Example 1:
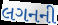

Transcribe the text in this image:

લગનની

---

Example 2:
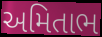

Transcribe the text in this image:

અમિતાભ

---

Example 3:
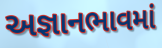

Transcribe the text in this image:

અજ્ઞાનભાવમાં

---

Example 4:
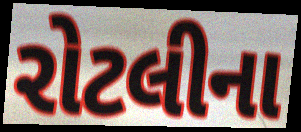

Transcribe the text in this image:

રોટલીના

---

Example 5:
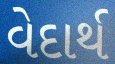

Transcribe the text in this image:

વેદાર્થ